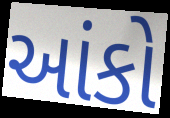
આંકો